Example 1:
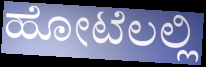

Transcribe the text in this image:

ಹೋಟೆಲಲ್ಲಿ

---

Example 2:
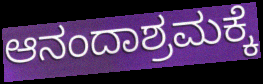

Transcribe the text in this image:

ಆನಂದಾಶ್ರಮಕ್ಕೆ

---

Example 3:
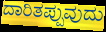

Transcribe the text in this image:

ದಾರಿತಪ್ಪುವುದು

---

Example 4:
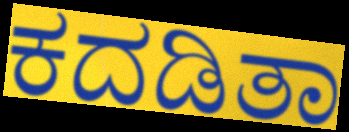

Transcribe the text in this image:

ಕದಡಿತಾ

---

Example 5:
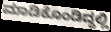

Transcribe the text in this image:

ಮಾಡಿಕೊಂಡಿದ್ದಲ್ಲಿ